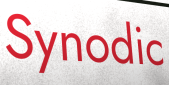
Synodic